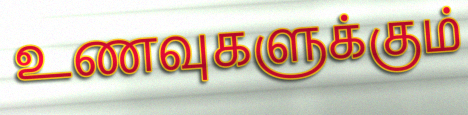
உணவுகளுக்கும்